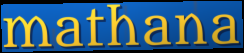
mathana